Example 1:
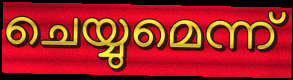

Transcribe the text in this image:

ചെയ്യുമെന്ന്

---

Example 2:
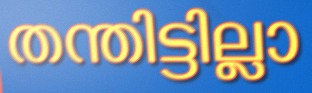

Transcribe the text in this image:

തന്തിട്ടില്ലാ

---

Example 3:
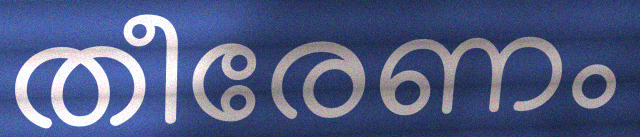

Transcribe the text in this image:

തീരേണം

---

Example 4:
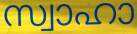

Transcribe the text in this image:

സ്വാഹാ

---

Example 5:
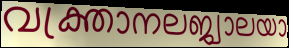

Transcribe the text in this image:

വക്ത്രാനലജ്വാലയാ